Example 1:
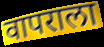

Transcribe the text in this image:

वापराला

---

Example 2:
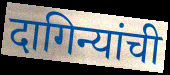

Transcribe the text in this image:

दागिन्यांची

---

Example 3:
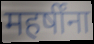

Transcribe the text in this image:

महर्षींना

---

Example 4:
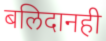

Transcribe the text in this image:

बलिदानही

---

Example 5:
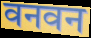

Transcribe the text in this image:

वनवन